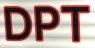
DPT